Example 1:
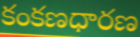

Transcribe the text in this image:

కంకణధారణ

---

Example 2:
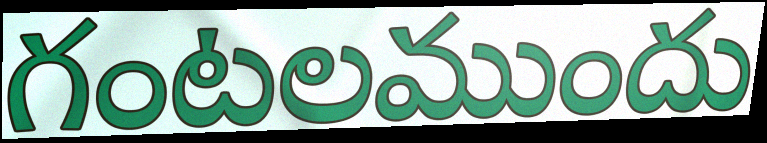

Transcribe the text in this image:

గంటలముందు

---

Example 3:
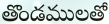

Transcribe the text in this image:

తొండములతో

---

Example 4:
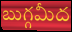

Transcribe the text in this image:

బుగ్గమీద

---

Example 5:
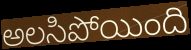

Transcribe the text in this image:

అలసిపోయింది